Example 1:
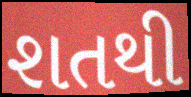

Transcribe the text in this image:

શતથી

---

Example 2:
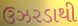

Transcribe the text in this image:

ઉઝરડાથી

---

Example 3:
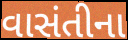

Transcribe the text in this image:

વાસંતીના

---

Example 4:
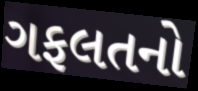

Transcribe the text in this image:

ગફલતનો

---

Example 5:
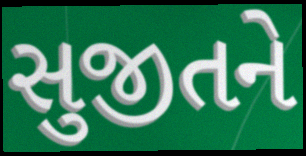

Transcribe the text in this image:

સુજીતને